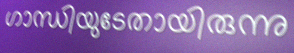
ഗാന്ധിയുടേതായിരുന്നു